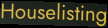
Houselisting